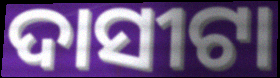
ଦାସୀଟା